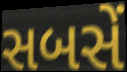
સબસેં